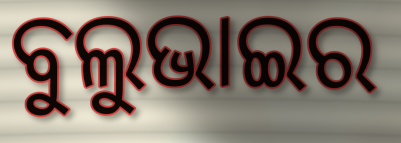
ବୁଲୁଭାଇର